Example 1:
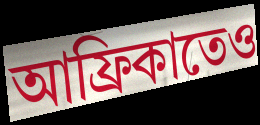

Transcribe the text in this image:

আফ্রিকাতেও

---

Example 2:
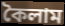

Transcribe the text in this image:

কৈলাম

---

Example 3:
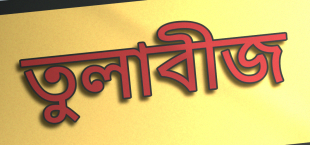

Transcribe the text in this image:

তুলাবীজ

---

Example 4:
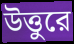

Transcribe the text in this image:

উত্তুরে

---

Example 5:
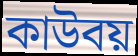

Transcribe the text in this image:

কাউবয়